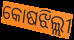
କୋଷଝିଲ୍ଲୀ